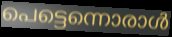
പെട്ടെന്നൊരാൾ